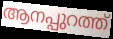
ആനപ്പുറത്ത്